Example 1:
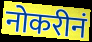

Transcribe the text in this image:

नोकरीनं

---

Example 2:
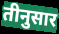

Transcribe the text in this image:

तीनुसार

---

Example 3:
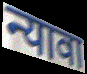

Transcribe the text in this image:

न्यावा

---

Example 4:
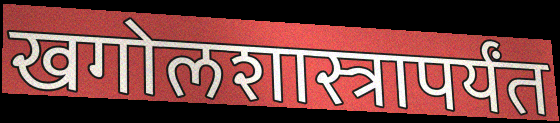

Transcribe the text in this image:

खगोलशास्त्रापर्यंत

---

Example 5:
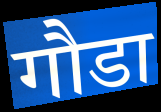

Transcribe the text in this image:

गौडा